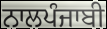
ਨਾਲਪੰਜਾਬੀ